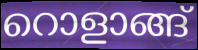
റൊളാങ്ങ്